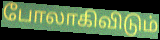
போலாகிவிடும்